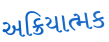
અક્રિયાત્મક